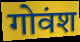
गोवंश